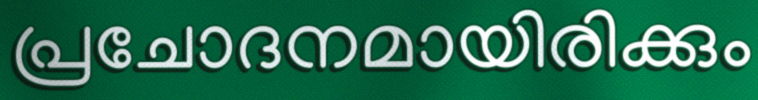
പ്രചോദനമായിരിക്കും